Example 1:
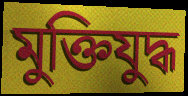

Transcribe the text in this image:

মুক্তিযুদ্ধ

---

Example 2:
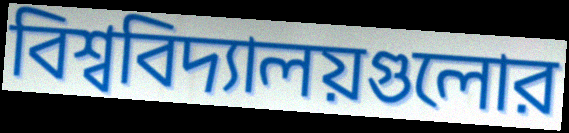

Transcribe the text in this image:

বিশ্ববিদ্যালয়গুলোর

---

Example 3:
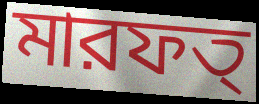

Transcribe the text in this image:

মারফত্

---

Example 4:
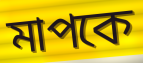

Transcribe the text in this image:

মাপকে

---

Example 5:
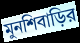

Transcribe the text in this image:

মুনশিবাড়ির